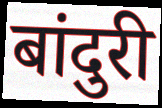
बांदुरी